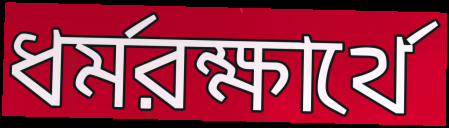
ধর্মরক্ষার্থে